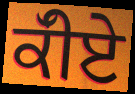
ਕੱੀਏ